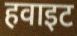
हवाइट